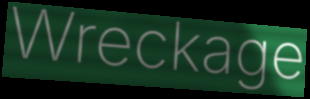
Wreckage